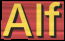
Alf